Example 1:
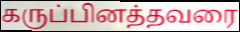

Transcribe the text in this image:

கருப்பினத்தவரை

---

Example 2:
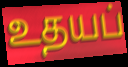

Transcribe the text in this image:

உதயப்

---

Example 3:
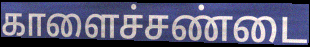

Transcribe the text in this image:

காளைச்சண்டை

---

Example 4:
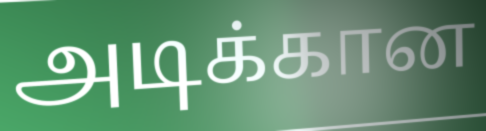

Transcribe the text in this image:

அடிக்கான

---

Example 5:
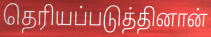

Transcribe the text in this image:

தெரியப்படுத்தினான்